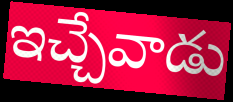
ఇచ్చేవాడు